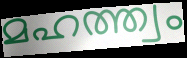
മഹത്ത്വം